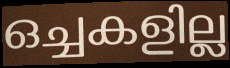
ഒച്ചകളില്ല